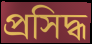
প্ৰসিদ্ধ